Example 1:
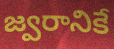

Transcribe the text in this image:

జ్వరానికే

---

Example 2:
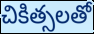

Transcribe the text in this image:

చికిత్సలతో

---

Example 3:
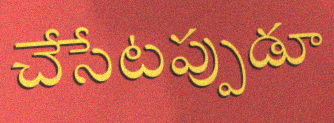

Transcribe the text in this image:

చేసేటప్పుడూ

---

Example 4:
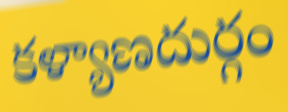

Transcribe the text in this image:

కళ్యాణదుర్గం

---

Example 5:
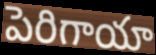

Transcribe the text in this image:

పెరిగాయా